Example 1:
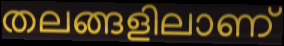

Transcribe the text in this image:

തലങ്ങളിലാണ്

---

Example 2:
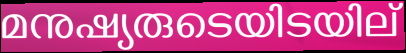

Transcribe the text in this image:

മനുഷ്യരുടെയിടയില്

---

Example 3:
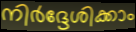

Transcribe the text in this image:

നിർദ്ദേശിക്കാം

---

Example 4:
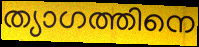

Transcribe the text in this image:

ത്യാഗത്തിനെ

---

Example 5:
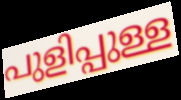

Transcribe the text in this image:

പുളിപ്പുള്ള